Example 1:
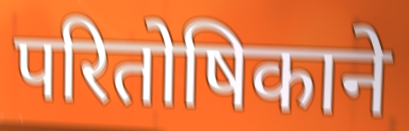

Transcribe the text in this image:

परितोषिकाने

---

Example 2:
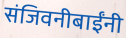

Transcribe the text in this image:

संजिवनीबाईंनी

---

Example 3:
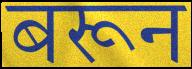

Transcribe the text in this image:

बरून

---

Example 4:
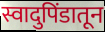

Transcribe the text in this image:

स्वादुपिंडातून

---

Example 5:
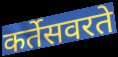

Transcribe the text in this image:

कर्तेसवरते